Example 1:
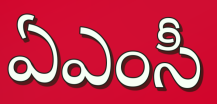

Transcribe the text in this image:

ఏఎంసీ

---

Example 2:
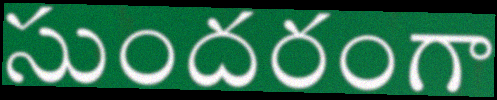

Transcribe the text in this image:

సుందరంగా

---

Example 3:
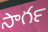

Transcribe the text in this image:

సాగర్‍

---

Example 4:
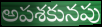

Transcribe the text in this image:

అపశకునపు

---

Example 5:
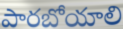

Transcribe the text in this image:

పారబోయాలి